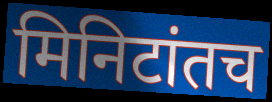
मिनिटांतच